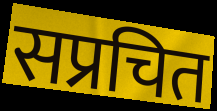
सप्रचित